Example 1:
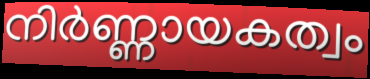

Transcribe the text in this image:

നിർണ്ണായകത്വം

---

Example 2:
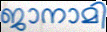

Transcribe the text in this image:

ജാനാമി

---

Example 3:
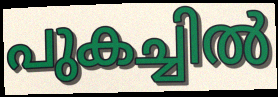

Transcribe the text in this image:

പുകച്ചിൽ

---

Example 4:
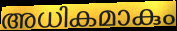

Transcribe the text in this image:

അധികമാകും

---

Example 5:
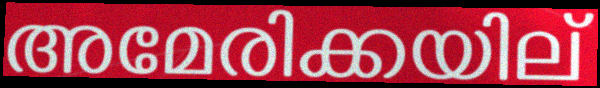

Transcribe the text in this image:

അമേരിക്കയില്